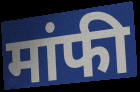
मांफी